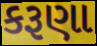
કરૂણા